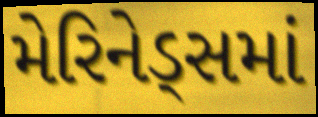
મેરિનેડ્સમાં